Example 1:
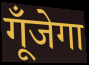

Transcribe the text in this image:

गूँजेगा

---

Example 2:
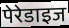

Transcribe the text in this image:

पेरेडाइज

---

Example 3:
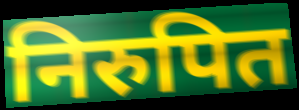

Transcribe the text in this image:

निरुपित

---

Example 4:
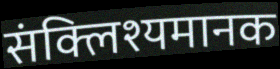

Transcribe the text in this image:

संक्लिश्यमानक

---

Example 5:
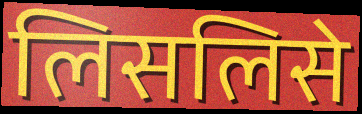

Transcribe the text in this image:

लिसलिसे